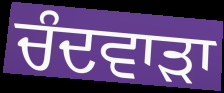
ਚੰਦਵਾੜਾ